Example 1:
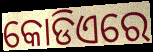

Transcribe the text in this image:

କୋଡିଏରେ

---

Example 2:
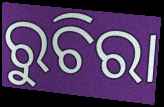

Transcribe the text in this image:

ରୁଚିରା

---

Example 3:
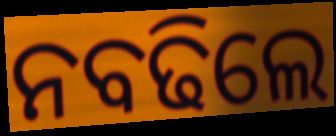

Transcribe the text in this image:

ନବଢିଲେ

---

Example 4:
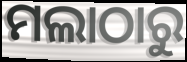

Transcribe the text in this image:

ମଲାଠାରୁ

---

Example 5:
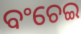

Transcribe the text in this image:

ବଂଚେଇ